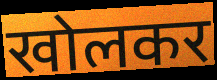
खोलकर